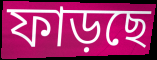
ফাড়ছে